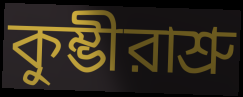
কুম্ভীরাশ্রু